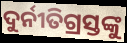
ଦୁର୍ନୀତିଗ୍ରସ୍ତଙ୍କୁ